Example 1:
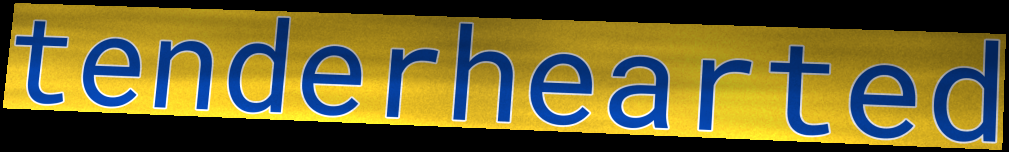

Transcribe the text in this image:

tenderhearted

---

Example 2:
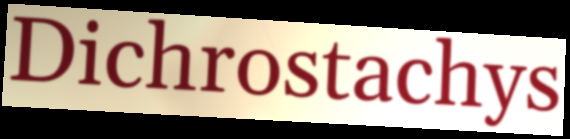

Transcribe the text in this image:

Dichrostachys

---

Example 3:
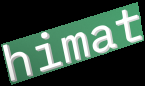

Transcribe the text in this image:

himat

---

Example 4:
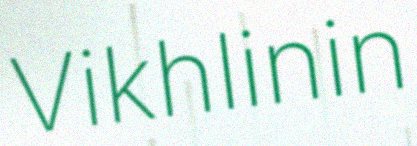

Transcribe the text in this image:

Vikhlinin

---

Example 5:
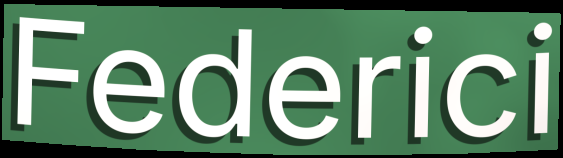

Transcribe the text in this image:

Federici